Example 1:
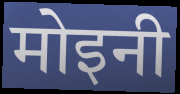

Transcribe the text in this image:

मोइनी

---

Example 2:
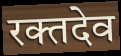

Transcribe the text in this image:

रक्तदेव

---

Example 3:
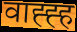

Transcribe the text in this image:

वाह्ह्ह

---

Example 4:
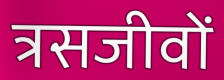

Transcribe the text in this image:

त्रसजीवों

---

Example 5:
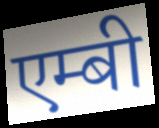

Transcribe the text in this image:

एम्बी